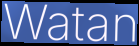
Watan